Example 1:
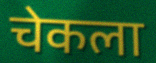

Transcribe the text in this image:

चेकला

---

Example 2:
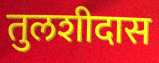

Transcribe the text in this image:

तुलशीदास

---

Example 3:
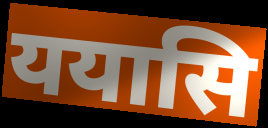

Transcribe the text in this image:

ययासि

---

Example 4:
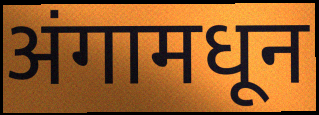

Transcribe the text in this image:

अंगामधून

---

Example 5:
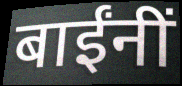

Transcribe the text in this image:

बाईंनीं